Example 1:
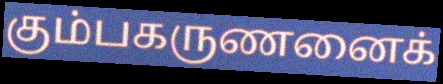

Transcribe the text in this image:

கும்பகருணனைக்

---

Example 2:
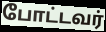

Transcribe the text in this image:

போட்டவர்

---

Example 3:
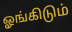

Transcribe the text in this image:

ஓங்கிடும்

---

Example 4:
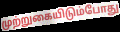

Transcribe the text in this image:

முற்றுகையிடும்போது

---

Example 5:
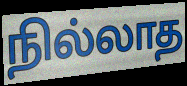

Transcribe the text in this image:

நில்லாத